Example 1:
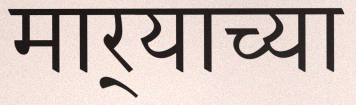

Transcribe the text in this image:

मार्याच्या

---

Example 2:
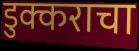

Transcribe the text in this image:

डुक्कराचा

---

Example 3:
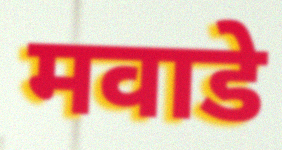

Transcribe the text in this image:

मवाडे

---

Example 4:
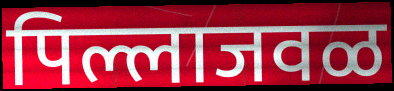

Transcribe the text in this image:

पिल्लाजवळ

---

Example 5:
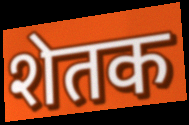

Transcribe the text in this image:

शेतक